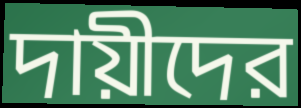
দায়ীদের